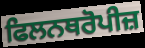
ਫਿਲਨਥਰੋਪੀਜ਼